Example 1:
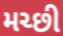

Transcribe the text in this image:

મચ્છી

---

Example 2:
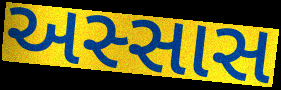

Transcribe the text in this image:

અસ્સાસ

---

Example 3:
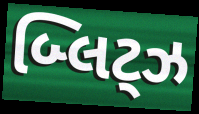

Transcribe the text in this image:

બ્લિટ્ઝ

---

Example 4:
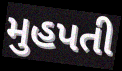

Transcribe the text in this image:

મુહપતી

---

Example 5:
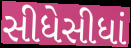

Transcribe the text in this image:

સીધેસીધાં